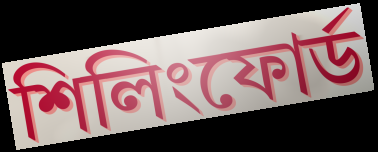
শিলিংফোর্ড